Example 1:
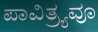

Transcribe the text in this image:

ಪಾವಿತ್ರ್ಯವೂ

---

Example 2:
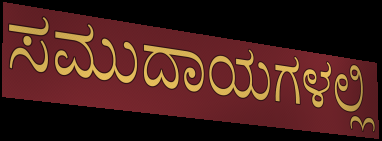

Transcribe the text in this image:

ಸಮುದಾಯಗಳಲ್ಲಿ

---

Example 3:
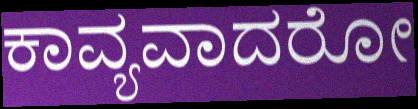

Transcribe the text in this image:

ಕಾವ್ಯವಾದರೋ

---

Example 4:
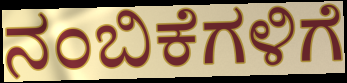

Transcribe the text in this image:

ನಂಬಿಕೆಗಳಿಗೆ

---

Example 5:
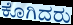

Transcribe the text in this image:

ಕೊಗಿದರು